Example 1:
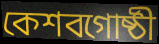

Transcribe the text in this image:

কেশবগোষ্ঠী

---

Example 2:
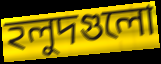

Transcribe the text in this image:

হলুদগুলো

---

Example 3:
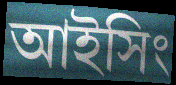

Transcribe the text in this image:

আইসিং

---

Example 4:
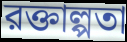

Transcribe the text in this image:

রক্তাল্পতা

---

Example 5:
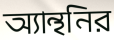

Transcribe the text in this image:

অ্যান্থনির